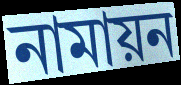
নামায়ন